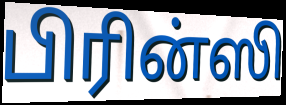
பிரின்ஸி